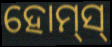
ହୋମ୍‌ସ୍